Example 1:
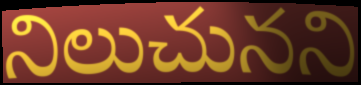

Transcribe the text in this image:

నిలుచునని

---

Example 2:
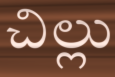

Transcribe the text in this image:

చిల్లు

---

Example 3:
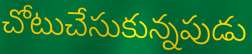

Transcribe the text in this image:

చోటుచేసుకున్నపుడు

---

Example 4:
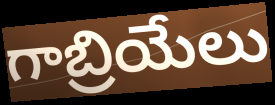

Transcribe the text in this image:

గాబ్రియేలు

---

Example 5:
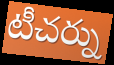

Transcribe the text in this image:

టీచర్ను